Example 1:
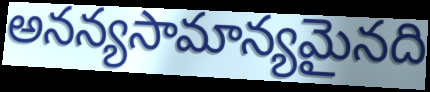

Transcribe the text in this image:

అనన్యసామాన్యమైనది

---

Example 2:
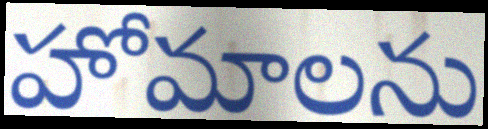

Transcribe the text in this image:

హోమాలను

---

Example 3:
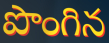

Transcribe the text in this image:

పొంగిన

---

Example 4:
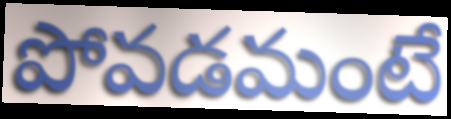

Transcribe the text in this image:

పోవడమంటే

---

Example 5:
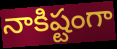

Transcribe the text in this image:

నాకిష్టంగా